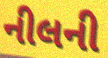
નીલની